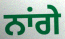
ਨਾਂਗੇ